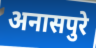
अनासपुरे